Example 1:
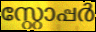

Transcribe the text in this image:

സ്റ്റോപ്പർ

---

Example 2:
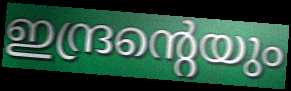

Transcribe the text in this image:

ഇന്ദ്രന്റെയും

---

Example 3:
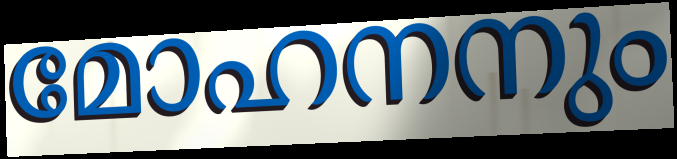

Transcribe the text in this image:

മോഹനനും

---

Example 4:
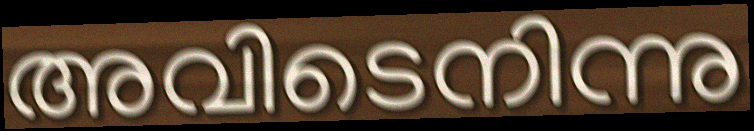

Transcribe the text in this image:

അവിടെനിന്നു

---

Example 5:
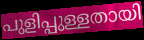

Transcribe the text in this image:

പുളിപ്പുള്ളതായി